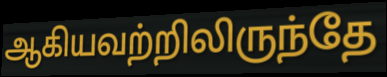
ஆகியவற்றிலிருந்தே